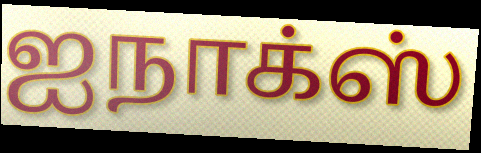
ஐநாக்ஸ்